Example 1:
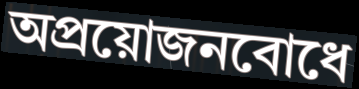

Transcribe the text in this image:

অপ্রয়োজনবোধে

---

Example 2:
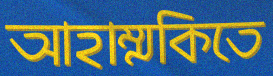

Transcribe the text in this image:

আহাম্মকিতে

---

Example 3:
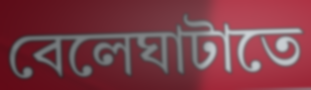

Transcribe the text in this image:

বেলেঘাটাতে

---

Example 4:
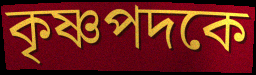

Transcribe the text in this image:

কৃষ্ণপদকে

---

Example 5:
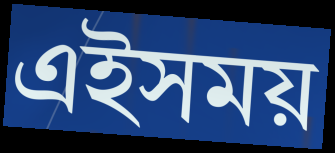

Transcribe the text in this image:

এইসময়